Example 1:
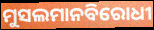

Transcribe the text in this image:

ମୁସଲମାନବିରୋଧୀ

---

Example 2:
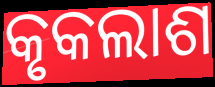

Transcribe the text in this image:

କୃକଲାଶ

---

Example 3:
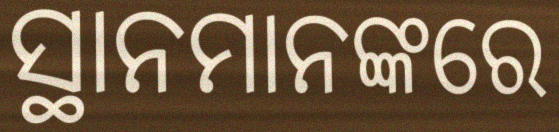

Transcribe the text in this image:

ସ୍ଥାନମାନଙ୍କରେ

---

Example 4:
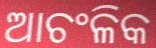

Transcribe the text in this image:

ଆଚଂଳିକ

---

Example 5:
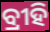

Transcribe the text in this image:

ବ୍ରୀହି